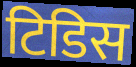
टिडिस